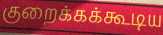
குறைக்கக்கூடிய